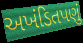
અખંડિતપણું